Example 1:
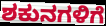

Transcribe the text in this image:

ಶಕುನಗಳಿಗೆ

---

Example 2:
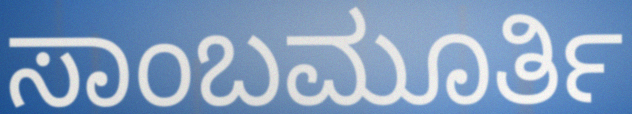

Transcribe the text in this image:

ಸಾಂಬಮೂರ್ತಿ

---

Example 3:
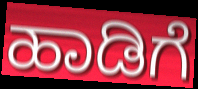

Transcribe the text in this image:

ಹಾಡಿಗೆ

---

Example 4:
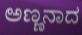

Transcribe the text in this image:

ಅಣ್ಣನಾದ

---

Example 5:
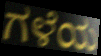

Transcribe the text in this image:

ಗಳೆಯ